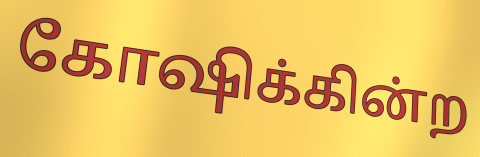
கோஷிக்கின்ற